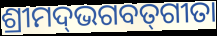
ଶ୍ରୀମଦ୍‌ଭଗବତ୍‌ଗୀତା